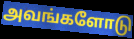
அவங்களோடு